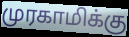
முரகாமிக்கு